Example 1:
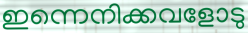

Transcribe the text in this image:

ഇന്നെനിക്കവളോടു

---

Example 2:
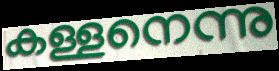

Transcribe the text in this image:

കള്ളനെന്നു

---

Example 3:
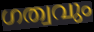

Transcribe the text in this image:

ഗത്വവും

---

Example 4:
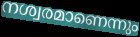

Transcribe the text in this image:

നശ്വരമാണെന്നും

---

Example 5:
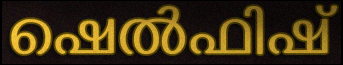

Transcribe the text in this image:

ഷെൽഫിഷ്